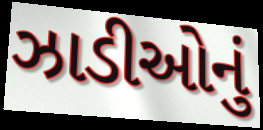
ઝાડીઓનું